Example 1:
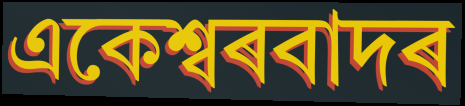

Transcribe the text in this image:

একেশ্বৰবাদৰ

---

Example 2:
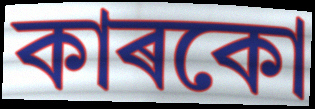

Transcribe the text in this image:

কাৰকো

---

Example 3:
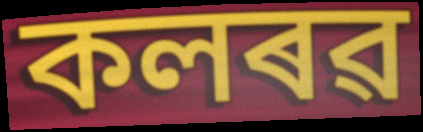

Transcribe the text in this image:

কলৰৱ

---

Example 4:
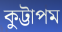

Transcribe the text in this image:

কুট্টাপম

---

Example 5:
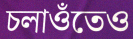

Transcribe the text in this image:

চলাওঁতেও